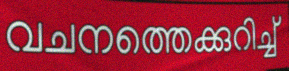
വചനത്തെക്കുറിച്ച്